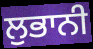
ਲੁਭਾਨੀ